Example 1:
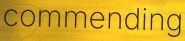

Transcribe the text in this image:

commending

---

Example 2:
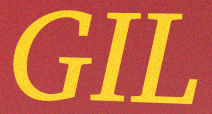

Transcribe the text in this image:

GIL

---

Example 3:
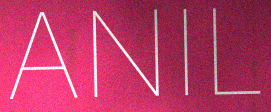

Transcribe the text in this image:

ANIL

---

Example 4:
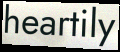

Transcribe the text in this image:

heartily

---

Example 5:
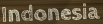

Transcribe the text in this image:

Indonesia